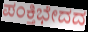
ಪಂಕ್ತಿಭೇದದ